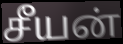
சீயன்